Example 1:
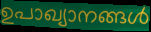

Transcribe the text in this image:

ഉപാഖ്യാനങ്ങൾ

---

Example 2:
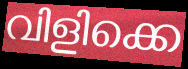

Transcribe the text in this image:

വിളിക്കെ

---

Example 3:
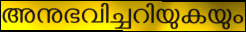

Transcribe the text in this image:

അനുഭവിച്ചറിയുകയും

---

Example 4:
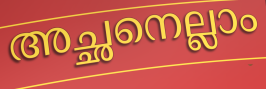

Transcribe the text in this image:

അച്ഛനെല്ലാം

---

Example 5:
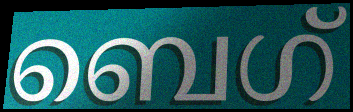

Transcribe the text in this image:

ബെഗ്